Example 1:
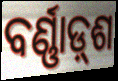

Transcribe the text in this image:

ବର୍ଣ୍ଣାଡ଼୍‌ଶ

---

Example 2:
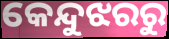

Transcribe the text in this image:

କେନ୍ଦୁଝରରୁ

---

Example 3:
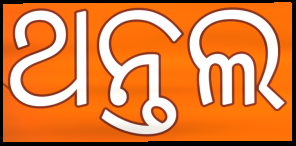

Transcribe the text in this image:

ଥନ୍ତଲ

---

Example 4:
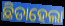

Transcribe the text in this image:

ଛିଡାହେଲା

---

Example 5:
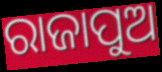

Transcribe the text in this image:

ରାଜାପୁଅ